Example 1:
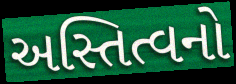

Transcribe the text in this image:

અસ્તિત્વનો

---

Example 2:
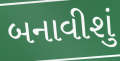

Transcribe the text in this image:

બનાવીશું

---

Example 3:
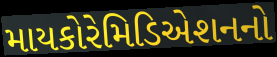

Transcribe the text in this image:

માયકોરેમિડિએશનનો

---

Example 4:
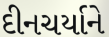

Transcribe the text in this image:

દીનચર્યાને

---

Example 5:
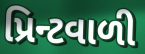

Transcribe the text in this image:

પ્રિન્ટવાળી